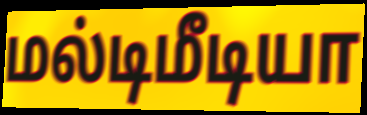
மல்டிமீடியா